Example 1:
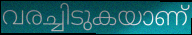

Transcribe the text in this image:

വരച്ചിടുകയാണ്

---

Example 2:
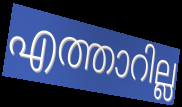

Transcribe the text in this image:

എത്താറില്ല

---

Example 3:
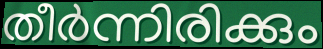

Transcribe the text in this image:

തീർന്നിരിക്കും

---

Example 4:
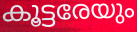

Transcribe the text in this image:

കൂട്ടരേയും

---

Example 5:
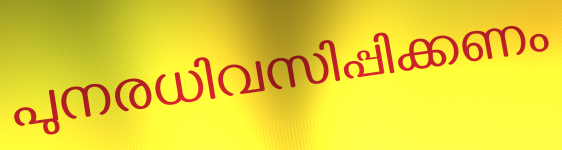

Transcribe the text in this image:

പുനരധിവസിപ്പിക്കണം